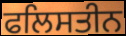
ਫਲਿਸਤੀਨ